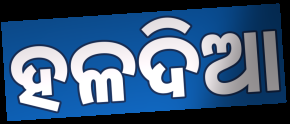
ହଳଦିଆ